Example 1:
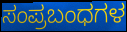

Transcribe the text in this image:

ಸಂಪ್ರಬಂಧಗಳ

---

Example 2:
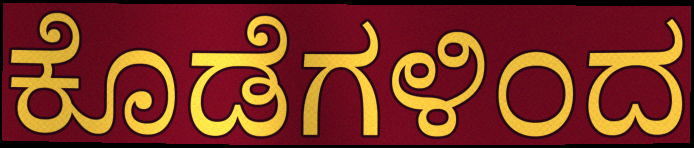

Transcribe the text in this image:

ಕೊಡೆಗಳಿಂದ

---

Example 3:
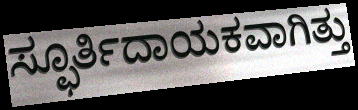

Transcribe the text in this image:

ಸ್ಫೂರ್ತಿದಾಯಕವಾಗಿತ್ತು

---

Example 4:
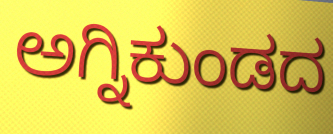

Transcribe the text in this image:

ಅಗ್ನಿಕುಂಡದ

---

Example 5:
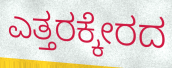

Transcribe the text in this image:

ಎತ್ತರಕ್ಕೇರದ